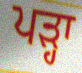
ਪੜ੍ਹਾ